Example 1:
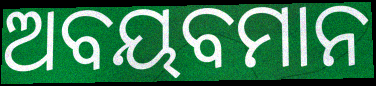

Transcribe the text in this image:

ଅବୟବମାନ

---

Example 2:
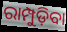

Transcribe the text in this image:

ରାମ୍ପୁଡ଼ିବା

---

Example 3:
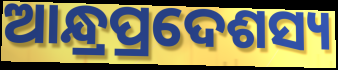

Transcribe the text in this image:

ଆନ୍ଧ୍ରପ୍ରଦେଶସ୍ୟ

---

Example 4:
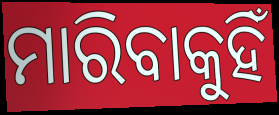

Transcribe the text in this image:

ମାରିବାକୁହିଁ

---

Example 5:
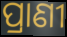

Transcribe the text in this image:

ପ୍ରାଣୀ